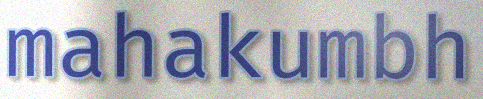
mahakumbh